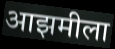
आझमीला